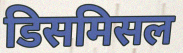
डिसमिसल